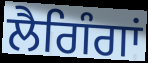
ਲੈਗਿੰਗਾਂ